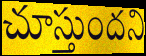
చూస్తుందని